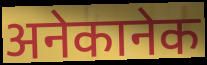
अनेकानेक